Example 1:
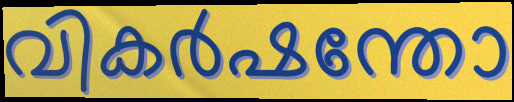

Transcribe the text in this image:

വികർഷന്തോ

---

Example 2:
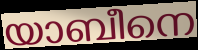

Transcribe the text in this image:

യാബീനെ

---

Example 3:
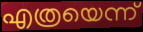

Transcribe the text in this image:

എത്രയെന്ന്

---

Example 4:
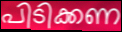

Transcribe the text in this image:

പിടിക്കണ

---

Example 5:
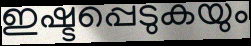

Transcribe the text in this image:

ഇഷ്ടപ്പെടുകയും